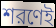
শরণেই